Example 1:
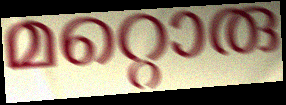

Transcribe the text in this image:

മറ്റൊരു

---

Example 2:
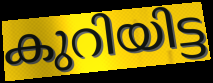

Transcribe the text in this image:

കുറിയിട്ട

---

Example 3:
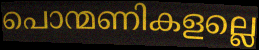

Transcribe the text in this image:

പൊന്മണികളല്ലെ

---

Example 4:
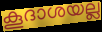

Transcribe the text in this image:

കൂദാശയല്ല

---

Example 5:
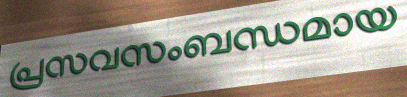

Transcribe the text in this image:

പ്രസവസംബന്ധമായ